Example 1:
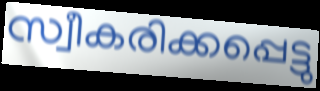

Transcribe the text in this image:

സ്വീകരിക്കപ്പെട്ടു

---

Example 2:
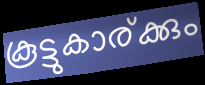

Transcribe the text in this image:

കൂട്ടുകാര്ക്കും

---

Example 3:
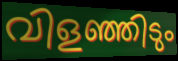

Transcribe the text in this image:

വിളഞ്ഞിടും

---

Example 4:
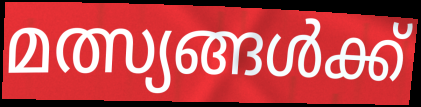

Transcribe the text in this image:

മത്സ്യങ്ങൾക്ക്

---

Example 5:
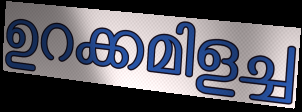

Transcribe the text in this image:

ഉറക്കമിളച്ച